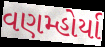
વણમ્હોર્યા